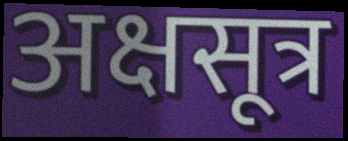
अक्षसूत्र